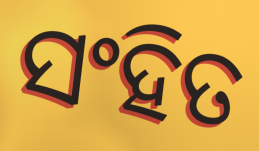
ସଂହିତ